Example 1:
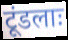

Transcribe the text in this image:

टूंडलाः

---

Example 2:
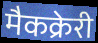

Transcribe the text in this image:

मैकक्रेरी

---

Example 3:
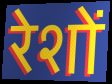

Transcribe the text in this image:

रेशों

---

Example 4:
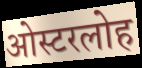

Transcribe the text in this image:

ओस्टरलोह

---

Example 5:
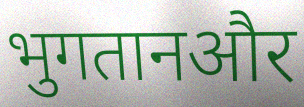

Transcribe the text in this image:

भुगतानऔर